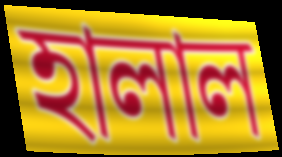
হালাল